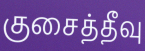
குசைத்தீவு